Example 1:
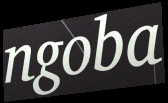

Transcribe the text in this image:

ngoba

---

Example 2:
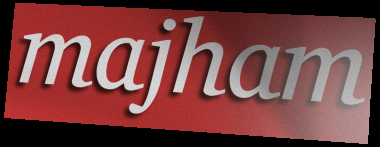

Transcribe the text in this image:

majham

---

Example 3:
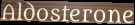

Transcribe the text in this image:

Aldosterone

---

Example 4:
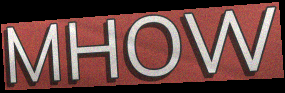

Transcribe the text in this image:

MHOW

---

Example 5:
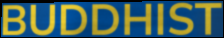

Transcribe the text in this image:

BUDDHIST